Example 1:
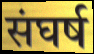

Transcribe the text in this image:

संघर्ष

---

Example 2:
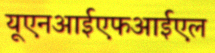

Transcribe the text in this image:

यूएनआईएफआईएल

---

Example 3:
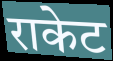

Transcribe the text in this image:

राकेट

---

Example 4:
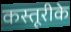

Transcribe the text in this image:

कस्तूरीके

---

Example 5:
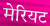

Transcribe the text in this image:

मेरियट